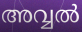
അവ്വൽ